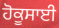
ਹੋਕੂਸਾਈ